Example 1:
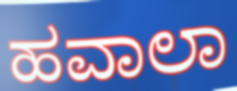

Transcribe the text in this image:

ಹವಾಲಾ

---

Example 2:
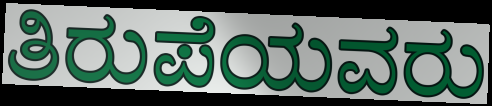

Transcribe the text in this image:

ತಿರುಪೆಯವರು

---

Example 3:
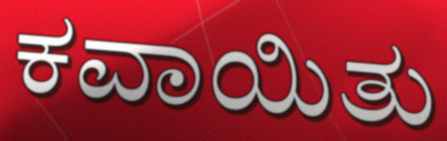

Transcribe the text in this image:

ಕವಾಯಿತು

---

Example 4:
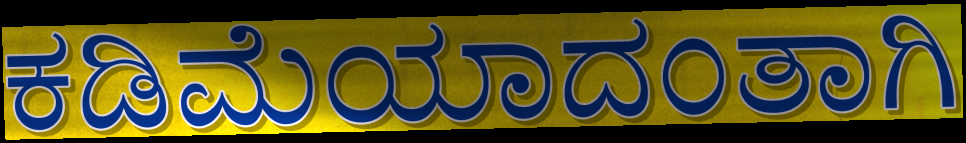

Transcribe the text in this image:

ಕಡಿಮೆಯಾದಂತಾಗಿ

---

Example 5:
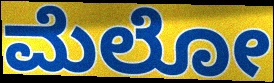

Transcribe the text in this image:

ಮೆಲೋ